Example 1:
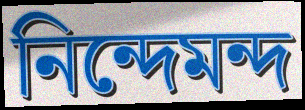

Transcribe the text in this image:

নিন্দেমন্দ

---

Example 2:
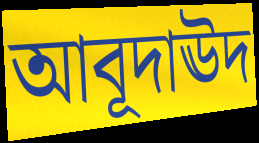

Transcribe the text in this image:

আবূদাঊদ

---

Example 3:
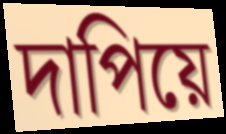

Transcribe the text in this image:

দাপিয়ে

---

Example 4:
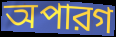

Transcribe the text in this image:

অপারগ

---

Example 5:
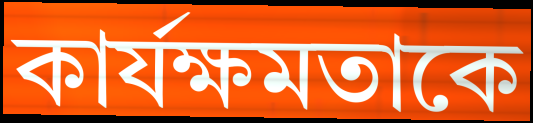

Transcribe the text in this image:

কার্যক্ষমতাকে